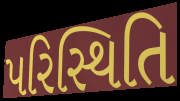
પરિસ્થિતિ